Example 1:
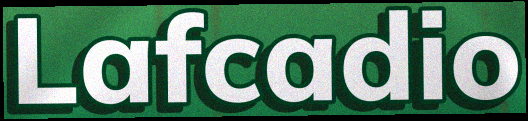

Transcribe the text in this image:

Lafcadio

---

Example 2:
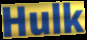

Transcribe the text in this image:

Hulk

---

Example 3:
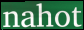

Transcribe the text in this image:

nahot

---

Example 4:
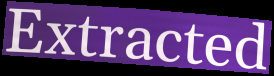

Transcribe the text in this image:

Extracted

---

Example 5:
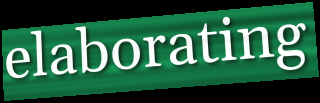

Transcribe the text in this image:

elaborating